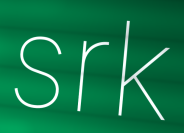
srk